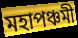
মহাপঞ্চমী